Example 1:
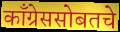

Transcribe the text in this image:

काँग्रेससोबतचे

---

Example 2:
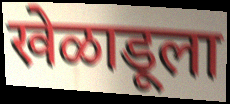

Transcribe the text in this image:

खेळाडूला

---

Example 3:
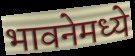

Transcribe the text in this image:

भावनेमध्ये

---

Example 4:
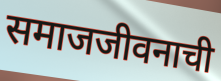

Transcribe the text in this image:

समाजजीवनाची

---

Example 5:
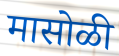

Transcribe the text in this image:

मासोळी